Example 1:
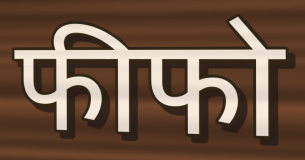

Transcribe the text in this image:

फीफो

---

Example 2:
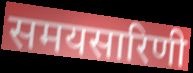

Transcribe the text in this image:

समयसारिणी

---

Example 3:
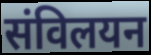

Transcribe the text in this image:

संविलयन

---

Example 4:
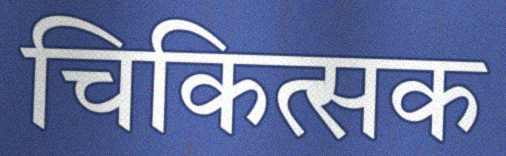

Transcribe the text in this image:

चिकित्‍सक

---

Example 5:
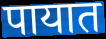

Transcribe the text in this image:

पायात